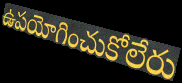
ఉపయోగించుకోలేరు